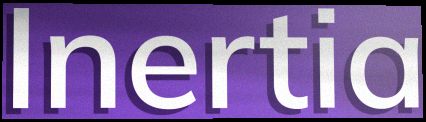
Inertia